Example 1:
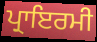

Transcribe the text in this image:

ਪ੍ਰਾਇਰਮੀ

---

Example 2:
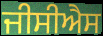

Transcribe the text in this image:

ਜੀਸੀਐਸ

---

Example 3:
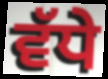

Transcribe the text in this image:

ਵੱਧੇ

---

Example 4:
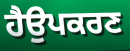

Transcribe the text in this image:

ਹੈਉਪਕਰਣ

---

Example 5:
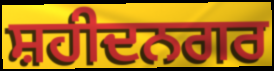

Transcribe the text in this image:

ਸ਼ਹੀਦਨਗਰ